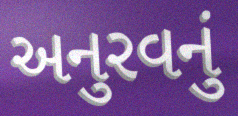
અનુરવનું